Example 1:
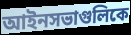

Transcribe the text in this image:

আইনসভাগুলিকে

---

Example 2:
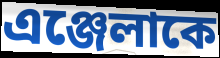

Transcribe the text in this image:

এঞ্জেলাকে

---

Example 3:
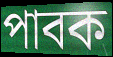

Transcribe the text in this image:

পাবক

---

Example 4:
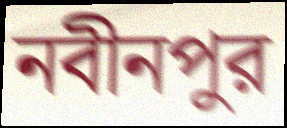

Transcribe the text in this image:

নবীনপুর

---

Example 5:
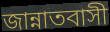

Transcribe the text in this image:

জান্নাতবাসী